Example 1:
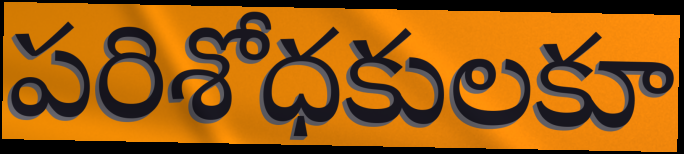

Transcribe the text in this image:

పరిశోధకులకూ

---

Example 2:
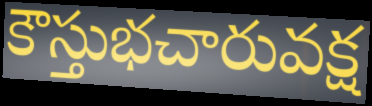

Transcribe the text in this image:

కౌస్తుభచారువక్ష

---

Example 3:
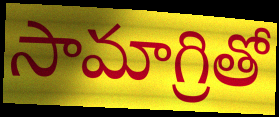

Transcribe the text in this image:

సామాగ్రితో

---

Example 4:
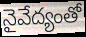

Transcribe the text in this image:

నైవేద్యంతో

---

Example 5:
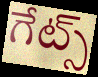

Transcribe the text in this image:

గేట్స్